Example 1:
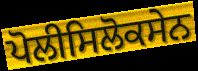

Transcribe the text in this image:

ਪੋਲੀਸਿਲੋਕਸੇਨ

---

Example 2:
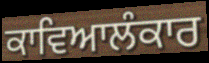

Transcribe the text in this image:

ਕਾਵਿਆਲੰਕਾਰ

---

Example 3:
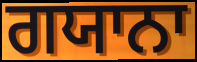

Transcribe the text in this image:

ਗਯਾਨਾ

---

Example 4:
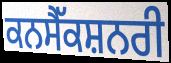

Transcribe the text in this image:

ਕਨਸੈੱਕਸ਼ਨਰੀ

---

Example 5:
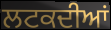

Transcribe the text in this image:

ਲਟਕਦੀਆਂ